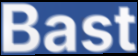
Bast